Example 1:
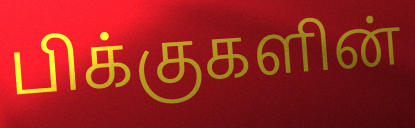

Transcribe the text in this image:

பிக்குகளின்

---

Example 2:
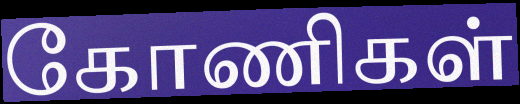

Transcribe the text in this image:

கோணிகள்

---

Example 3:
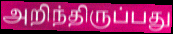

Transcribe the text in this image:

அறிந்திருப்பது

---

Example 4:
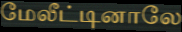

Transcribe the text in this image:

மேலீட்டினாலே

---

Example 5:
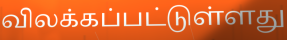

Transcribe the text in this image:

விலக்கப்பட்டுள்ளது